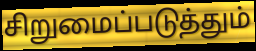
சிறுமைப்படுத்தும்